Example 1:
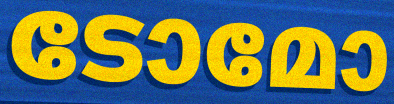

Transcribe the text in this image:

ടോമോ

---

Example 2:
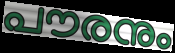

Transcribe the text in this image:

പൗരനും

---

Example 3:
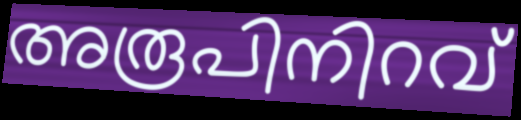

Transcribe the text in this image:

അരൂപിനിറവ്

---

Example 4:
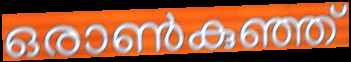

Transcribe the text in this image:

ഒരാൺകുഞ്ഞ്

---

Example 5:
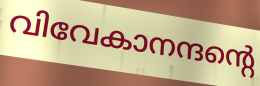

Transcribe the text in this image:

വിവേകാനന്ദന്റെ